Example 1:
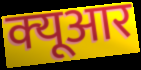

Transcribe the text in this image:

क्‍यूआर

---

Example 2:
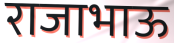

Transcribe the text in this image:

राजाभाऊ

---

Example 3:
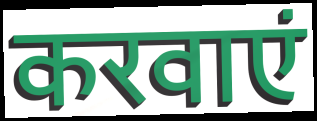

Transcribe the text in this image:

करवाएं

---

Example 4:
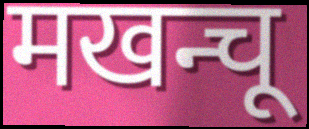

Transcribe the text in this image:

मखन्चू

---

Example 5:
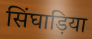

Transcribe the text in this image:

सिंघाड़िया